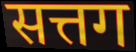
सत्तग